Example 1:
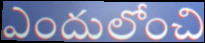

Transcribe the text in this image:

ఎందులోంచి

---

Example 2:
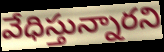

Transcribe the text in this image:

వేధిస్తున్నారని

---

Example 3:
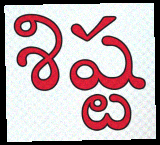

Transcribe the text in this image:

శిష్ట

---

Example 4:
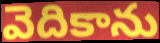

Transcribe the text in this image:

వెదికాను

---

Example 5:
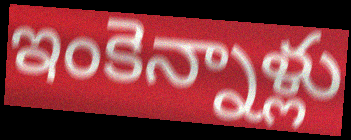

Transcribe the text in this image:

ఇంకెన్నాళ్లు